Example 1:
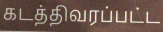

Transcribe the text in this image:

கடத்திவரப்பட்ட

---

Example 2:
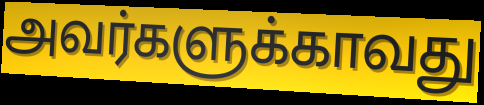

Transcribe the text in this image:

அவர்களுக்காவது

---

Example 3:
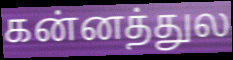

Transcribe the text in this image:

கன்னத்துல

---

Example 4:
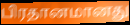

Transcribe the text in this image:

பிரதானமானது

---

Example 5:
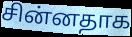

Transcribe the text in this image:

சின்னதாக